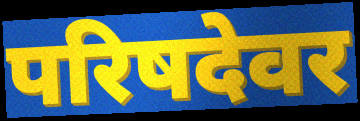
परिषदेवर